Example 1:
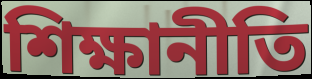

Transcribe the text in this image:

শিক্ষানীতি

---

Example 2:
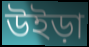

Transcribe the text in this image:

উইড়া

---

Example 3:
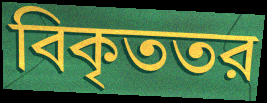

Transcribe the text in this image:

বিকৃততর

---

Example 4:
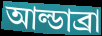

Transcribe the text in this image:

আল্ডাব্রা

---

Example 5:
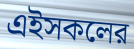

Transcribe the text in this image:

এইসকলের